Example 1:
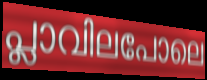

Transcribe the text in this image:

പ്ലാവിലപോലെ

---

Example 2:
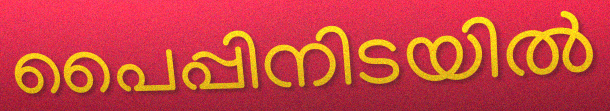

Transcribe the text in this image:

പൈപ്പിനിടയിൽ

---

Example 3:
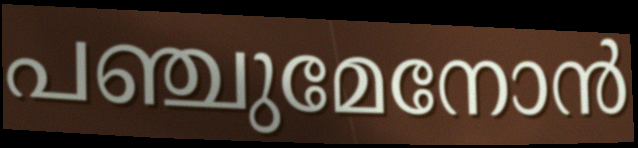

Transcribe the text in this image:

പഞ്ചുമേനോൻ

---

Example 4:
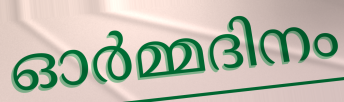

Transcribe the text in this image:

ഓർമ്മദിനം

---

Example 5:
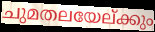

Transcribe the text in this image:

ചുമതലയേല്ക്കും